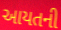
આયતની